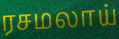
ரசமலாய்